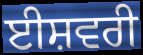
ਈਸ਼ਵਰੀ